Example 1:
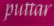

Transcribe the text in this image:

puttar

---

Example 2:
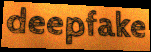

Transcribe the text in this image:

deepfake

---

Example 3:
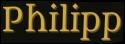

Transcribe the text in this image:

Philipp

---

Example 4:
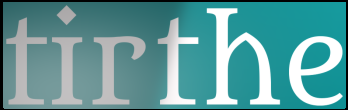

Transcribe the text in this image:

tirthe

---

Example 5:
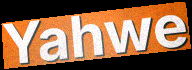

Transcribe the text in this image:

Yahwe